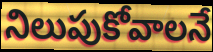
నిలుపుకోవాలనే